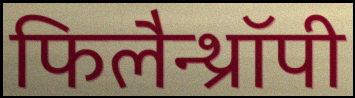
फिलैन्थ्रॉपी